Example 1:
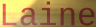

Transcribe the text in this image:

Laine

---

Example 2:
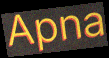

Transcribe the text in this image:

Apna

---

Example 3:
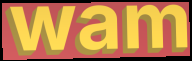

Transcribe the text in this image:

wam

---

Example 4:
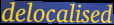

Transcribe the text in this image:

delocalised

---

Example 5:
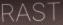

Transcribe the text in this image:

RAST